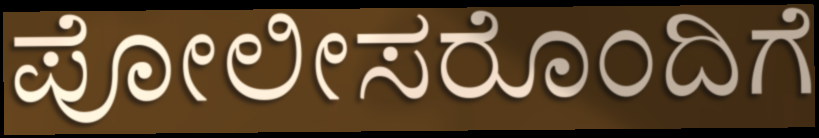
ಪೋಲೀಸರೊಂದಿಗೆ